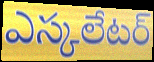
ఎస్కలేటర్